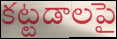
కట్టడాలపై